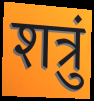
शत्रुं